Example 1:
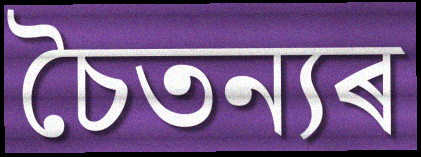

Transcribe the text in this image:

চৈতন্যৰ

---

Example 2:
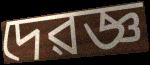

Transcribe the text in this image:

দেৱজ্ঞ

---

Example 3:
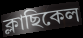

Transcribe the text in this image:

ক্লাছিকেল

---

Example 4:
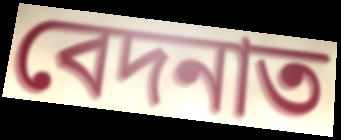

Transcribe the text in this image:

বেদনাত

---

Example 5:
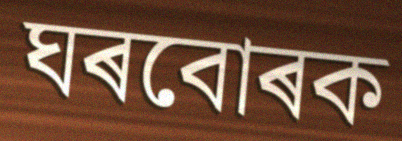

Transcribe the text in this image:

ঘৰবোৰক